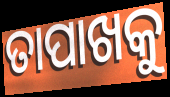
ତାପାଖକୁ